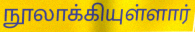
நூலாக்கியுள்ளார்